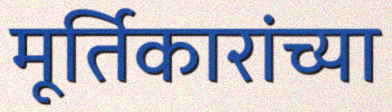
मूर्तिकारांच्या